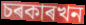
চৰকাৰখন